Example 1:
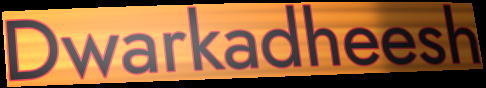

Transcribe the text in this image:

Dwarkadheesh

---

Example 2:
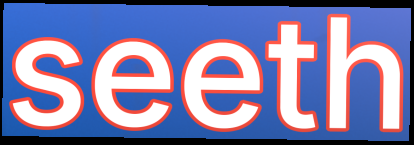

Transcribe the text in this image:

seeth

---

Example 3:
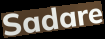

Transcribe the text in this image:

Sadare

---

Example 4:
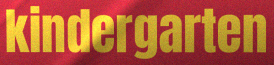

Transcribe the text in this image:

kindergarten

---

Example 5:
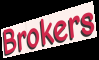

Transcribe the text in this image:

Brokers